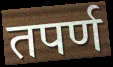
तपर्ण